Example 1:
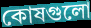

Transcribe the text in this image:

কোষগুলো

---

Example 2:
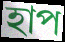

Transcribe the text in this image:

হাপ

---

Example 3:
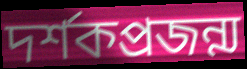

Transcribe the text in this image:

দর্শকপ্রজন্ম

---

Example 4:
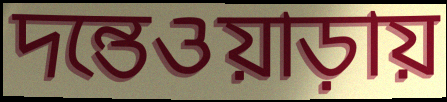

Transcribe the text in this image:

দন্তেওয়াড়ায়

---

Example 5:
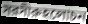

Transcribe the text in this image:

সরসীরুহলোচন